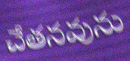
చేతనవును